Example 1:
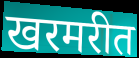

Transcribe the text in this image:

खरमरीत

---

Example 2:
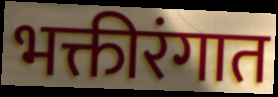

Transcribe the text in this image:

भक्तीरंगात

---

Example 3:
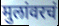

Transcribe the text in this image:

मुलांवरचं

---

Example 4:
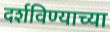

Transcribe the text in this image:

दर्शविण्याच्या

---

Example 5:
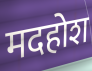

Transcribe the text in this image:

मदहोश